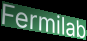
Fermilab